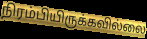
நிரம்பியிருக்கவில்லை